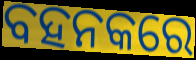
ବହନକରେ